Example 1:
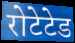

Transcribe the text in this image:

रोटेटेड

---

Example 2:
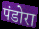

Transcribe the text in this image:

पंडोरा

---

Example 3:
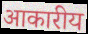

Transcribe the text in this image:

आकारीय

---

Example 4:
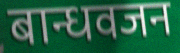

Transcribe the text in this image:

बान्धवजन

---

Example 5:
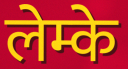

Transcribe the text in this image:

लेम्के